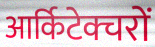
आर्किटेक्चरों